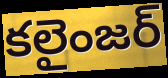
కలైంజర్